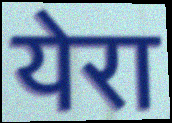
येरा